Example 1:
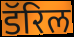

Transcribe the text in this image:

डॅरिल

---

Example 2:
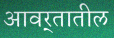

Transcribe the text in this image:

आवर्तातील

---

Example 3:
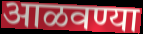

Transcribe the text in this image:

आळवण्या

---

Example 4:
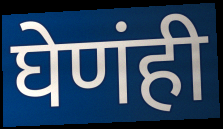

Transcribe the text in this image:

घेणंही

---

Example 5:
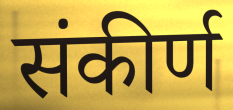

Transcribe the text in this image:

संकीर्ण